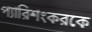
প্যারিশংকরকে